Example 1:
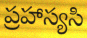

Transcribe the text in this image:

ప్రహాస్యసి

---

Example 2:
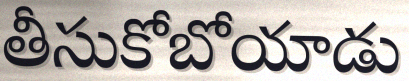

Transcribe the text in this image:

తీసుకోబోయాడు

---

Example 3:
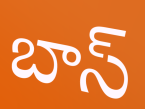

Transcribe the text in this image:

బాస్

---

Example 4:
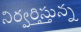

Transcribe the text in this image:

నిర్వర్తిస్తున్న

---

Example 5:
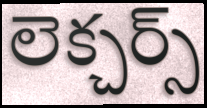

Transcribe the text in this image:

లెక్చర్స్